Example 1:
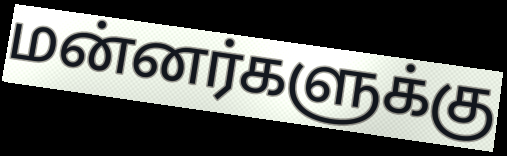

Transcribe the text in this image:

மன்னர்களுக்கு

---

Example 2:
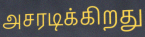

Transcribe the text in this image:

அசரடிக்கிறது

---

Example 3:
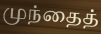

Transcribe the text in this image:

முந்தைத்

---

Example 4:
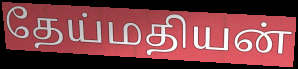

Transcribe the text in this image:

தேய்மதியன்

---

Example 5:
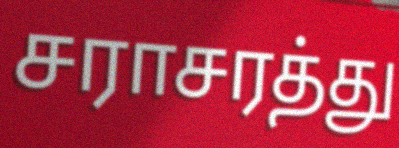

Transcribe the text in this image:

சராசரத்து